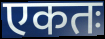
एकतः